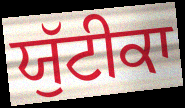
ਯੁੱਟੀਕਾ